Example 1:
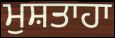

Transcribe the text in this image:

ਮੁਸ਼ਤਾਹਾ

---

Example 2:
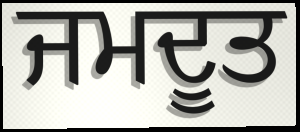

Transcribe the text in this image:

ਜਮਦੂਤ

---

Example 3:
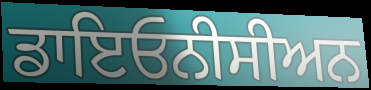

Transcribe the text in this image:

ਡਾਇਓਨੀਸੀਅਨ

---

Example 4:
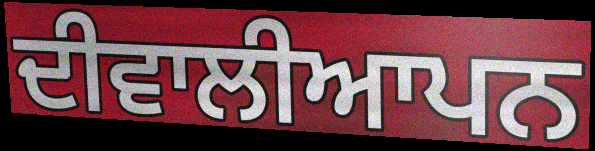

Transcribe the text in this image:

ਦੀਵਾਲੀਆਪਨ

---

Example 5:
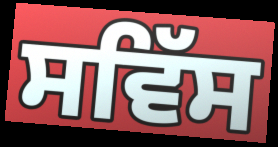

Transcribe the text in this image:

ਸਵਿੱਸ